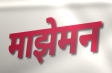
माझेमन